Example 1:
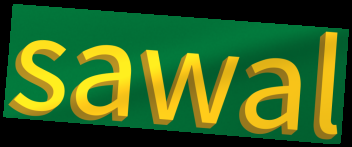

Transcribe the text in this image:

sawal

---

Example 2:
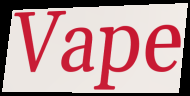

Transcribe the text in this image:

Vape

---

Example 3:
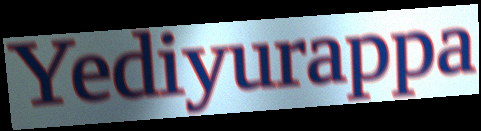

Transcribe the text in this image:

Yediyurappa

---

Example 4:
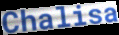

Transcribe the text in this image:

Chalisa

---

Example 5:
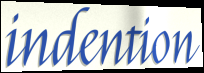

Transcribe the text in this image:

indention